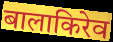
बालाकिरेव